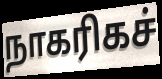
நாகரிகச்